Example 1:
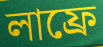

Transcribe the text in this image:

লাফ্রে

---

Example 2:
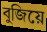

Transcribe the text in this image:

বুজিয়ে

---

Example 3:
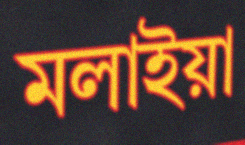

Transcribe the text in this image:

মলাইয়া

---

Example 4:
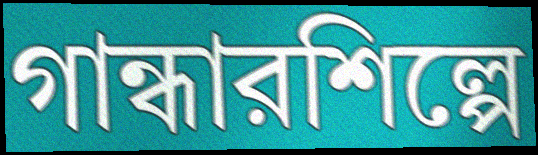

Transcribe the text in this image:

গান্ধারশিল্পে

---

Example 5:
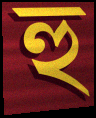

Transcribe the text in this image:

হু